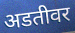
अडतीवर